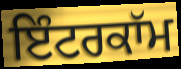
ਇੰਟਰਕਾੱਮ